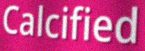
Calcified